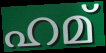
ഹമ്